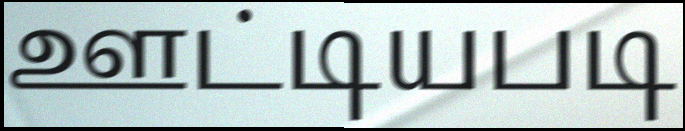
ஊட்டியபடி